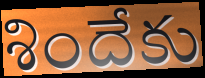
శిందేకు